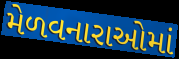
મેળવનારાઓમાં